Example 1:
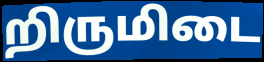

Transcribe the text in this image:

றிருமிடை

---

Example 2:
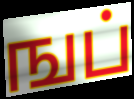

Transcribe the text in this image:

ஙப்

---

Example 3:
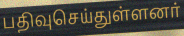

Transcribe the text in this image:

பதிவுசெய்துள்ளனர்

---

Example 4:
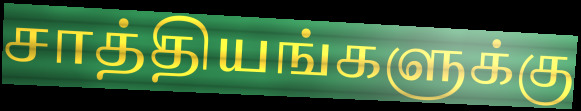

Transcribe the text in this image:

சாத்தியங்களுக்கு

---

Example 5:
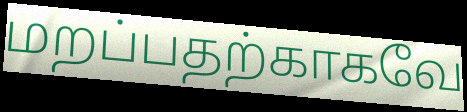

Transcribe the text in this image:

மறப்பதற்காகவே